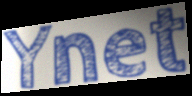
Ynet